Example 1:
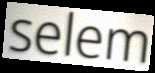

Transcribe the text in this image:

selem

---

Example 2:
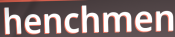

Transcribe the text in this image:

henchmen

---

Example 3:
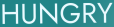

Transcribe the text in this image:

HUNGRY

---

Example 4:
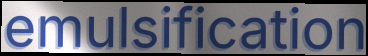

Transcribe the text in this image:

emulsification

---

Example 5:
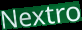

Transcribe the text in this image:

Nextro